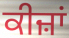
ਕੀਜ਼ਾਂ